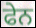
ਫੇਨ